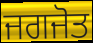
ਜਗਜੋਤ